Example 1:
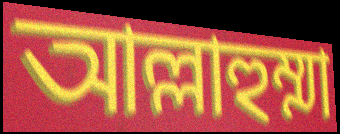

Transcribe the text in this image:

আল্লাহুম্মা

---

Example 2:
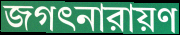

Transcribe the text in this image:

জগৎনারায়ণ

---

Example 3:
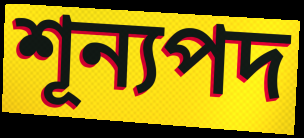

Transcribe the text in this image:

শূন্যপদ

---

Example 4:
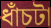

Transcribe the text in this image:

ধাঁচটা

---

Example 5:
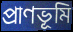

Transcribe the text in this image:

প্রাণভূমি